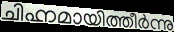
ചിഹ്നമായിത്തീർന്നു